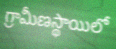
గ్రామీణస్థాయిలో